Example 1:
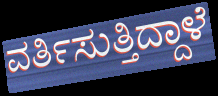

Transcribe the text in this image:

ವರ್ತಿಸುತ್ತಿದ್ದಾಳೆ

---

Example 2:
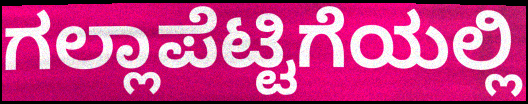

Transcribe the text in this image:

ಗಲ್ಲಾಪೆಟ್ಟಿಗೆಯಲ್ಲಿ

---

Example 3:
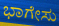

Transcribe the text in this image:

ಭಾಗೇಸು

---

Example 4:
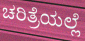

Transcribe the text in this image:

ಚರಿತ್ರೆಯಲ್ಲೆ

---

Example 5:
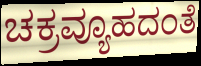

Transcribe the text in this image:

ಚಕ್ರವ್ಯೂಹದಂತೆ